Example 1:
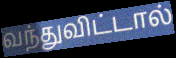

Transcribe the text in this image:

வந்துவிட்டால்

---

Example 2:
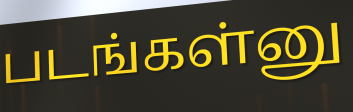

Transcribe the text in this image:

படங்கள்னு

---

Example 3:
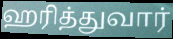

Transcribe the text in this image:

ஹரித்துவார்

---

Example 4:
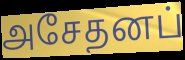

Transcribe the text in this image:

அசேதனப்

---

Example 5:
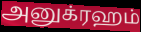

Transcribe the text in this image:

அனுக்ரஹம்